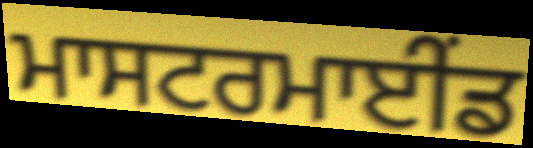
ਮਾਸਟਰਮਾਈੰਡ